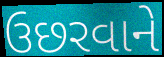
ઉછરવાને